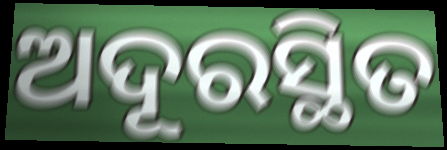
ଅଦୂରସ୍ଥିତ